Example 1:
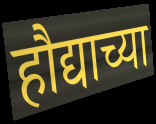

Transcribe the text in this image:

हौद्याच्या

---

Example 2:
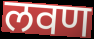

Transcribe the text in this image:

लवण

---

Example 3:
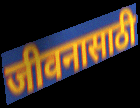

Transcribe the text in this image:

जीवनासाठी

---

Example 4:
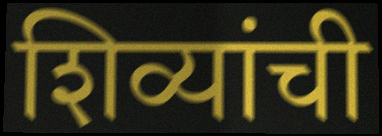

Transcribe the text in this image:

शिव्यांची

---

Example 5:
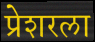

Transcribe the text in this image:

प्रेशरला